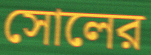
সোলের